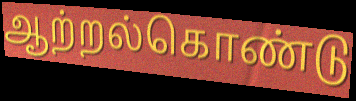
ஆற்றல்கொண்டு